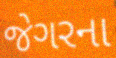
જેગરના